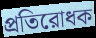
প্রতিরোধক